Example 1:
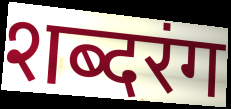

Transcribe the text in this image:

शब्दरंग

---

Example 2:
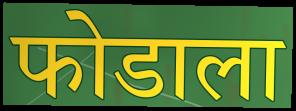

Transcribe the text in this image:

फोडाला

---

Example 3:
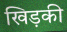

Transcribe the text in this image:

खिड़की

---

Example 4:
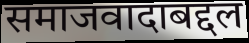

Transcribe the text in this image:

समाजवादाबद्दल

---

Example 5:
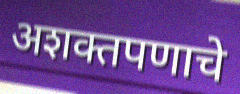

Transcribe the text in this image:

अशक्तपणाचे